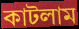
কাটলাম